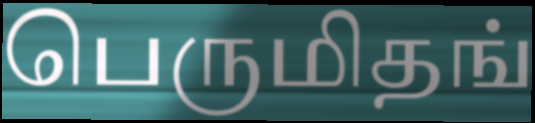
பெருமிதங்